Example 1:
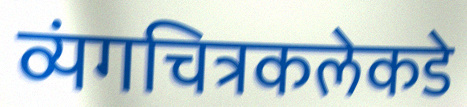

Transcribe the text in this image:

व्यंगचित्रकलेकडे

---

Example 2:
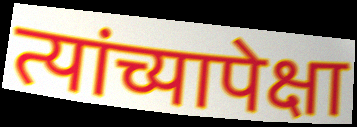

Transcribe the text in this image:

त्यांच्यापेक्षा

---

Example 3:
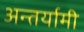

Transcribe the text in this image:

अन्तर्यामी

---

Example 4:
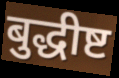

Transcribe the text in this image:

बुद्धीष्ट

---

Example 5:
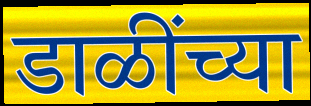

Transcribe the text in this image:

डाळींच्या